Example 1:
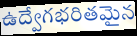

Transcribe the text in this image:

ఉద్వేగభరితమైన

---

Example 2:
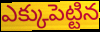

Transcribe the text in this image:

ఎక్కుపెట్టిన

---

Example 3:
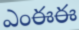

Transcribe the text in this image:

ఎంఈఈ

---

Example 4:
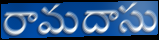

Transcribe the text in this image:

రామదాసు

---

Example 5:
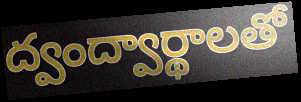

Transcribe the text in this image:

ద్వంద్వార్థాలతో